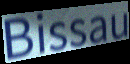
Bissau